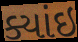
ક્યાંઇ